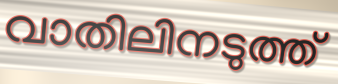
വാതിലിനടുത്ത്